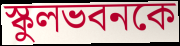
স্কুলভবনকে